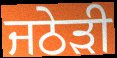
ਜਠੇੜੀ